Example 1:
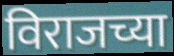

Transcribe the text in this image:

विराजच्या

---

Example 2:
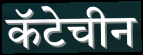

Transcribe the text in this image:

कॅटेचीन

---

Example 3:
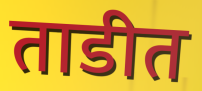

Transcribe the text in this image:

ताडीत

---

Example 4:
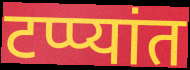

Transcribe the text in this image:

टप्प्यांत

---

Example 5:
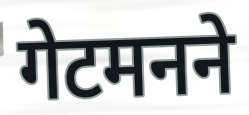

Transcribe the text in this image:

गेटमनने